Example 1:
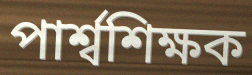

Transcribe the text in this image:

পার্শ্বশিক্ষক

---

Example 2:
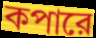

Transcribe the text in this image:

কপারে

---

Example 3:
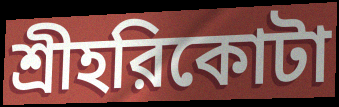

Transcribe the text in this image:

শ্রীহরিকোটা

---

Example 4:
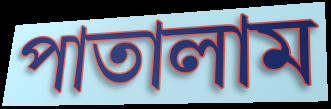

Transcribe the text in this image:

পাতালাম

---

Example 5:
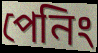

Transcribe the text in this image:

পেনিং